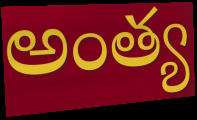
అంత్య